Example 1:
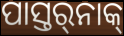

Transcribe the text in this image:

ପାସ୍ତର୍‍ନାକ୍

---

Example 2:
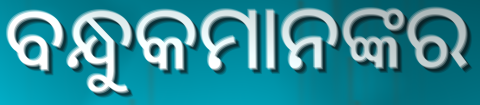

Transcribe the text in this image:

ବନ୍ଧୁକମାନଙ୍କର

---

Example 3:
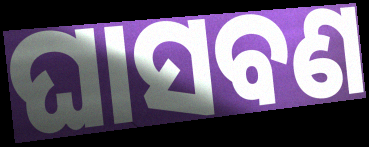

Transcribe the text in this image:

ଘାସବଣ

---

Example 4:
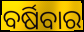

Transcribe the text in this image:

ବର୍ଷିବାର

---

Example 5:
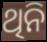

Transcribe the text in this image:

ଥିନି